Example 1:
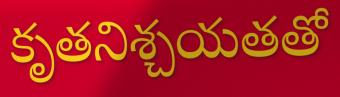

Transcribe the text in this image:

కృతనిశ్చయతతో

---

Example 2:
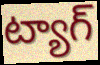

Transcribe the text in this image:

ట్యాగ్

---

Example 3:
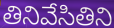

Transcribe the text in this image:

తినివేసితిని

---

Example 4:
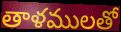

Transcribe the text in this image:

తాళములతో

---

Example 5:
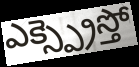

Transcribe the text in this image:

ఎక్స్ప్రెస్తో